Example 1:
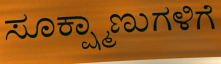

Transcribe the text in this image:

ಸೂಕ್ಷ್ಮಾಣುಗಳಿಗೆ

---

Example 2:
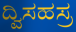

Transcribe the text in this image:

ದ್ವಿಸಹಸ್ರ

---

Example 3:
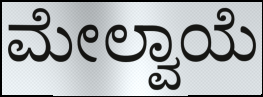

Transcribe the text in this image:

ಮೇಲ್ವಾಯೆ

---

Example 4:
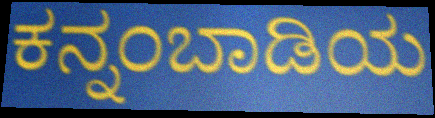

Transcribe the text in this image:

ಕನ್ನಂಬಾಡಿಯ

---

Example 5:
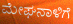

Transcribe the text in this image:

ಮೇಘನಾಳಿಗೆ